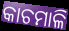
କାଚମାଳି